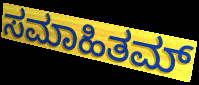
ಸಮಾಹಿತಮ್